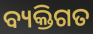
ବ୍ୟକ୍ତିଗତ